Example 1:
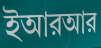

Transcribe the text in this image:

ইআরআর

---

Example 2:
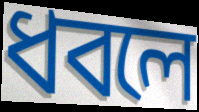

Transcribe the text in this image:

ধবলে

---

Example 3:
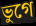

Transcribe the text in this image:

ভুগে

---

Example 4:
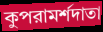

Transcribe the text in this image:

কুপরামর্শদাতা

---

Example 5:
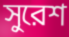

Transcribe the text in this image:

সুরেশ